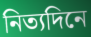
নিত্যদিনে